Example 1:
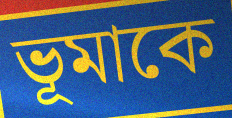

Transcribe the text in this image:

ভূমাকে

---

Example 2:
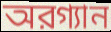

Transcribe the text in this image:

অরগ্যান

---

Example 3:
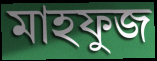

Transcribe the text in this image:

মাহফুজ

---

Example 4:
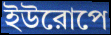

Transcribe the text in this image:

ইউরোপে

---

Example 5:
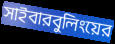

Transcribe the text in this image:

সাইবারবুলিংয়ের